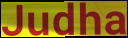
Judha